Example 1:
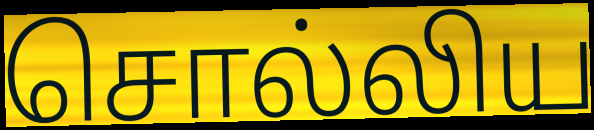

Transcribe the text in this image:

சொல்லிய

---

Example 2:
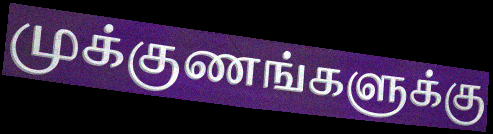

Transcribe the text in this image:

முக்குணங்களுக்கு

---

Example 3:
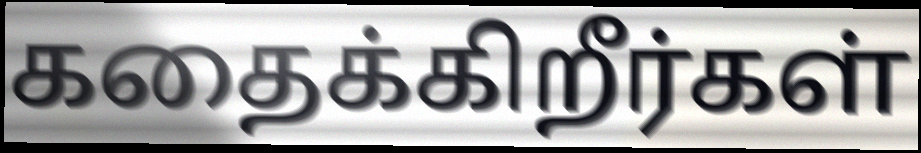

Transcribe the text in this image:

கதைக்கிறீர்கள்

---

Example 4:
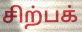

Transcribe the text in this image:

சிற்பக்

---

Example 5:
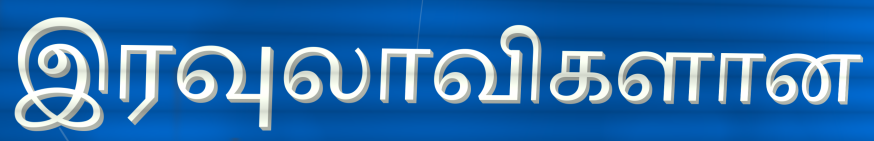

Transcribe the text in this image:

இரவுலாவிகளான